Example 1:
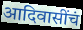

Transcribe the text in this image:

आदिवासींचं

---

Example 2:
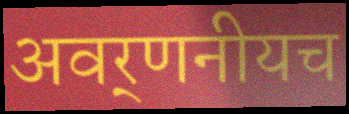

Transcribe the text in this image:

अवर्णनीयच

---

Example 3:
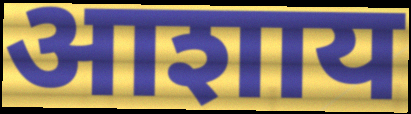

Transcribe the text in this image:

आशाय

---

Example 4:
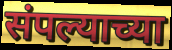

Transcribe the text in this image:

संपल्याच्या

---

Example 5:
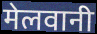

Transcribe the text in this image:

मेलवानी